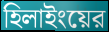
হিলাইংয়ের